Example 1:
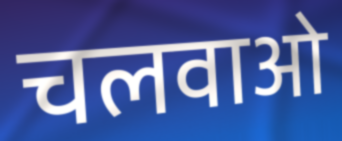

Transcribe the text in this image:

चलवाओ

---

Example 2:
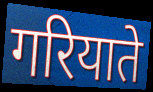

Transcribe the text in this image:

गरियाते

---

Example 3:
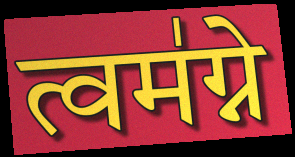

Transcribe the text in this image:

त्वम॑ग्ने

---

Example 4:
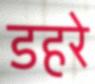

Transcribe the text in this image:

डहरे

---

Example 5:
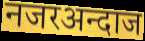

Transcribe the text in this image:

नजरअन्दाज